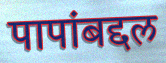
पापांबद्दल